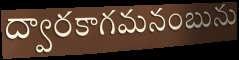
ద్వారకాగమనంబును